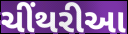
ચીંથરીઆ